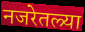
नजरेतल्या